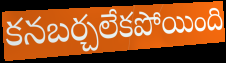
కనబర్చలేకపోయింది